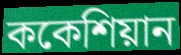
ককেশিয়ান